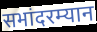
सभांदरम्यान